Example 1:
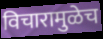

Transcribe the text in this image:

विचारामुळेच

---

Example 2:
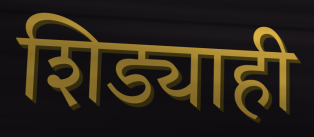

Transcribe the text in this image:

शिड्याही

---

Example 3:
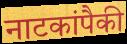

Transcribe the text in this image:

नाटकांपैकी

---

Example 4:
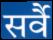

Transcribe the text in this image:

सर्वै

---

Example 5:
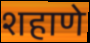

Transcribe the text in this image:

शहाणे